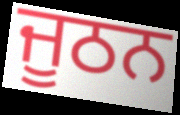
ਜੂਠਨ